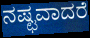
ನಷ್ಟವಾದರೆ